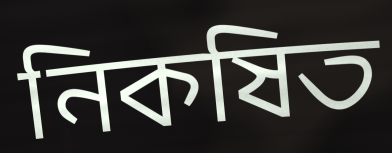
নিকষিত